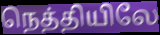
நெத்தியிலே